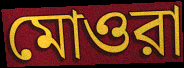
মোওরা